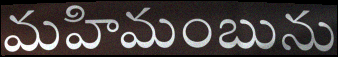
మహిమంబును